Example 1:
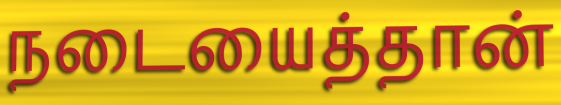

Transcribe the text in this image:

நடையைத்தான்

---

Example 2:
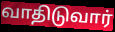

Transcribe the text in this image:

வாதிடுவார்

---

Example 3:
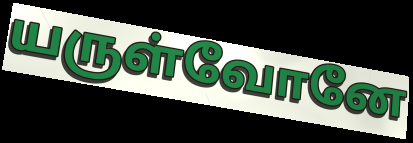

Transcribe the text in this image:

யருள்வோனே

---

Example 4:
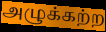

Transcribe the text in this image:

அழுக்கற்ற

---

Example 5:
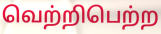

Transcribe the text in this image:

வெற்றிபெற்ற